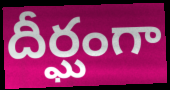
దీర్ఘంగా